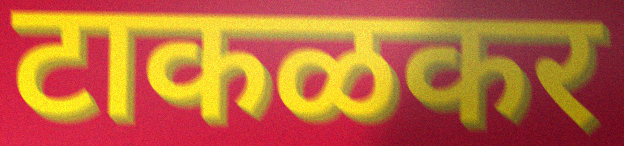
टाकळकर